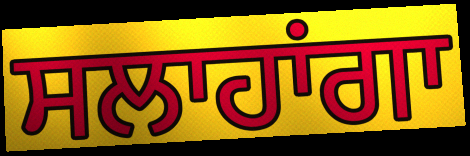
ਸਲਾਹਾਂਗਾ